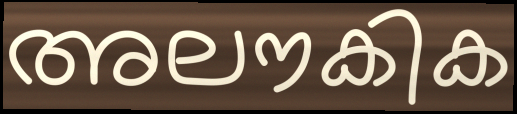
അലൗകിക